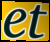
et